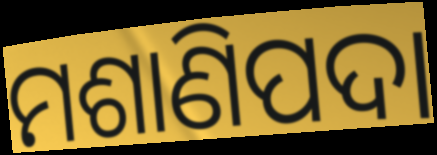
ମଶାଣିପଦା